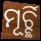
ମୂର୍ଚ୍ଛି